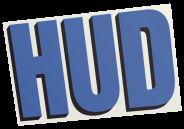
HUD